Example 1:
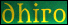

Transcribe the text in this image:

dhiro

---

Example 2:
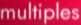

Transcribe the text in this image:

multiples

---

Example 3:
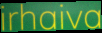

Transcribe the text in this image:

irhaiva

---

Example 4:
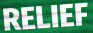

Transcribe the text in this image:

RELIEF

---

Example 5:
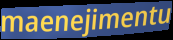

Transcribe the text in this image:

maenejimentu